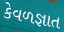
કેવળજ્ઞાત